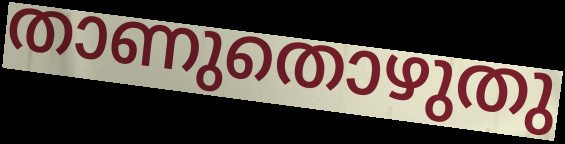
താണുതൊഴുതു